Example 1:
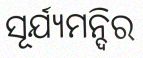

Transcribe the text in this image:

ସୂର୍ଯ୍ୟମନ୍ଦିର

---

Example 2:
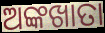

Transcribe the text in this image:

ଅଙ୍କଖାତା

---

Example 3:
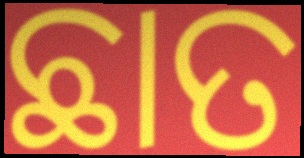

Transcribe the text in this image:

ଛାତ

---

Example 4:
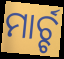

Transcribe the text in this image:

ମାର୍ଚ୍ଚ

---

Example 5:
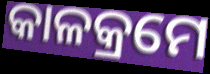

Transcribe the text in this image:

କାଳକ୍ରମେ